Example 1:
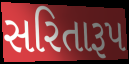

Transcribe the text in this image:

સરિતારૂપ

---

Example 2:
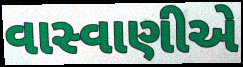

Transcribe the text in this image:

વાસ્વાણીએ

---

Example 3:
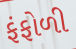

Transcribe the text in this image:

ફંફોળી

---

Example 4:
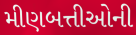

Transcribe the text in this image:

મીણબત્તીઓની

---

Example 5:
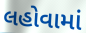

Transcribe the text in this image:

લહોવામાં